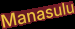
Manasulu